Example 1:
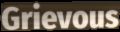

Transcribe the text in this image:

Grievous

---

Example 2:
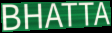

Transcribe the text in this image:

BHATTA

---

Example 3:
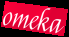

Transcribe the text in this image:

omeka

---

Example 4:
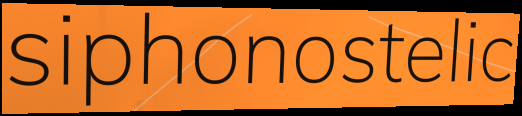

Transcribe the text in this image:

siphonostelic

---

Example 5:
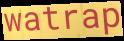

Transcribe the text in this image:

watrap